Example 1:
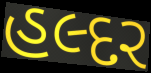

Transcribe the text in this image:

હલ્દર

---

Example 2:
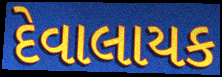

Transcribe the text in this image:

દેવાલાયક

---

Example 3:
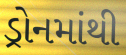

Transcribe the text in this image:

ડ્રોનમાંથી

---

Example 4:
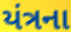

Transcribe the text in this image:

યંત્રના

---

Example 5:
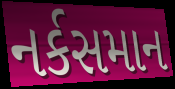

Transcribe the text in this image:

નર્કસમાન